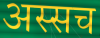
अस्सच